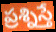
ప్రశ్నిస్తే